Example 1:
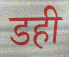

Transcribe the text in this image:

डही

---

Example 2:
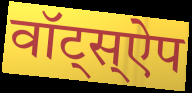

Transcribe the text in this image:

वॉट्स्ऐप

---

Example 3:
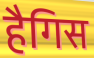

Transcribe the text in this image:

हैगिस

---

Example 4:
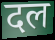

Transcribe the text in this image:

दल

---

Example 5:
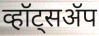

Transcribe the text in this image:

व्हॉट्सॲप